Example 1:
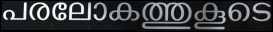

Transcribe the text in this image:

പരലോകത്തുകൂടെ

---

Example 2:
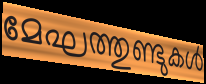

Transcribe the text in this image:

മേഘത്തുണ്ടുകൾ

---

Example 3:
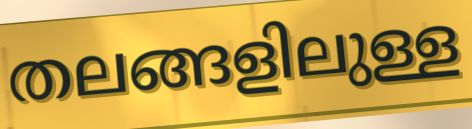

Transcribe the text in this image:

തലങ്ങളിലുള്ള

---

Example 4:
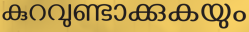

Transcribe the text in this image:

കുറവുണ്ടാക്കുകയും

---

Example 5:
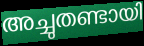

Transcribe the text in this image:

അച്ചുതണ്ടായി